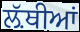
ਲ਼ੱਥੀਆਂ